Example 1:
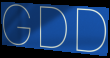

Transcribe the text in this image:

GDD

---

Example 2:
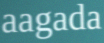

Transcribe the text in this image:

aagada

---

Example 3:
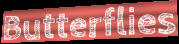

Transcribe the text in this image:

Butterflies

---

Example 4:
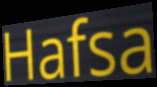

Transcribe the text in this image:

Hafsa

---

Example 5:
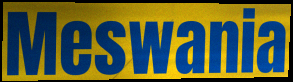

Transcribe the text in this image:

Meswania